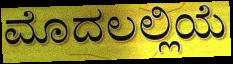
ಮೊದಲಲ್ಲಿಯೆ